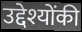
उद्देश्योंकी